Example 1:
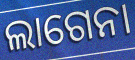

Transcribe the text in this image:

ଲାଗେନା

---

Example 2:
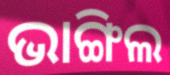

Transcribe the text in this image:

ଭାଙ୍ଗିଲ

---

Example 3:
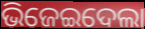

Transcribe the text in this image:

ଭିଜେଇଦେଲା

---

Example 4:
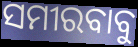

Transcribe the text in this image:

ସମୀରବାବୁ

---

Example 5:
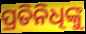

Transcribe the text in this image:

ପ୍ରତିନିଧିଙ୍କୁ